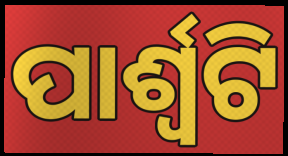
ପାର୍ଶ୍ଵଟି